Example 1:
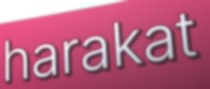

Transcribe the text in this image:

harakat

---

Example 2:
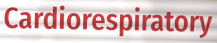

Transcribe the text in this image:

Cardiorespiratory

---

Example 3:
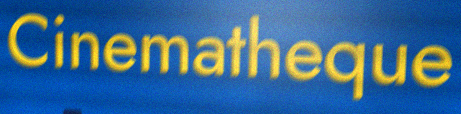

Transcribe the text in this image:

Cinematheque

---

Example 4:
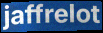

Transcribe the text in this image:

jaffrelot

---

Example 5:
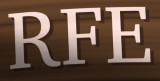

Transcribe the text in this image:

RFE